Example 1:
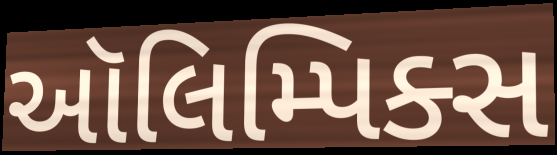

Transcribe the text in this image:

ઑલિમ્પિક્સ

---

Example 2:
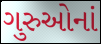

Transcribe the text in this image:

ગુરુઓનાં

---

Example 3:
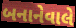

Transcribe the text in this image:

બનાનેવાલે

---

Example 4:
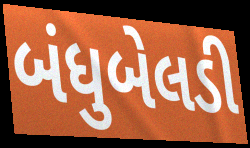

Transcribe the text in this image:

બંધુબેલડી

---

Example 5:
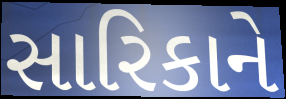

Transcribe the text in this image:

સારિકાને